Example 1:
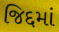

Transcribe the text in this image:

જિદ્દમાં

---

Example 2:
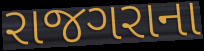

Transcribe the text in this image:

રાજગરાના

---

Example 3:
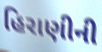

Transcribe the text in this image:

હિરાણીની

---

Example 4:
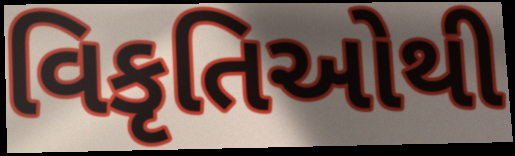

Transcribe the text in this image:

વિકૃતિઓથી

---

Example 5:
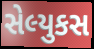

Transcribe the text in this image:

સેલ્યુકસ